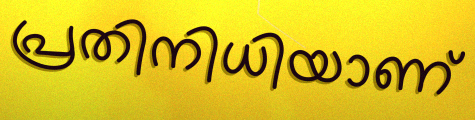
പ്രതിനിധിയാണ്